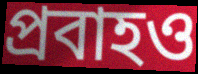
প্রবাহও